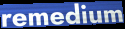
remedium